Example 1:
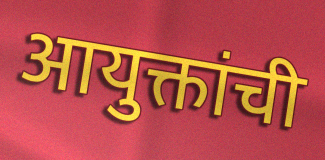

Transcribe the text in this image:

आयुक्तांची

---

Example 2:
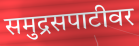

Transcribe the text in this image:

समुद्रसपाटीवर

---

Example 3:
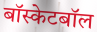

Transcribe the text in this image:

बॉस्केटबॉल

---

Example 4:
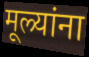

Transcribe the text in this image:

मूल्यांना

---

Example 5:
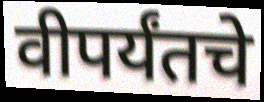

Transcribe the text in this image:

वीपर्यंतचे